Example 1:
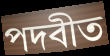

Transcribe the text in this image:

পদবীত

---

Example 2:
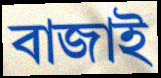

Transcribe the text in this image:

বাজাই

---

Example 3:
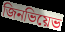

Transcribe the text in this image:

জিনভিয়েভ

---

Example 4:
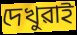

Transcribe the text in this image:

দেখুৱাই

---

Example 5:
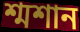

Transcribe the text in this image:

শ্মশান